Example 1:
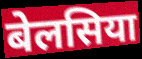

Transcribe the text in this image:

बेलसिया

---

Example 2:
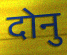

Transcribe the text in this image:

दोनु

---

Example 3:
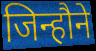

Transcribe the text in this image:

जिन्हौने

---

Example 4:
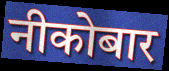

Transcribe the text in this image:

नीकोबार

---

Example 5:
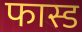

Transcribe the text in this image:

फास्ड